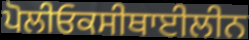
ਪੋਲੀਓਕਸੀਥਾਈਲੀਨ